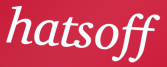
hatsoff